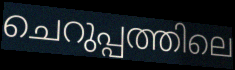
ചെറുപ്പത്തിലെ